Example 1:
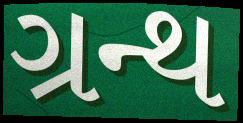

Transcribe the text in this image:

ગ્રન્થ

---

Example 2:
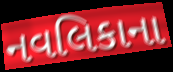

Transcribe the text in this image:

નવલિકાના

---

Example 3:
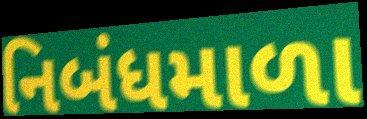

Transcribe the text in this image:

નિબંધમાળા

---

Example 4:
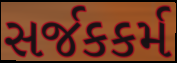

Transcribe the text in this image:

સર્જકકર્મ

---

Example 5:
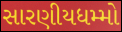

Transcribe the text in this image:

સારણીયધમ્મો